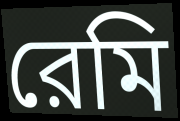
রেমি